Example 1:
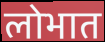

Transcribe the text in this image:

लोभात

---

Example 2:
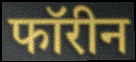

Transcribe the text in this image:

फॉरीन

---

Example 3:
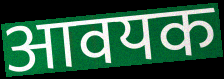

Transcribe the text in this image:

आवयक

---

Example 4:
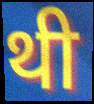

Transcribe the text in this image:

थी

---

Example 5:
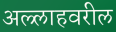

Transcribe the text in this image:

अल्लाहवरील